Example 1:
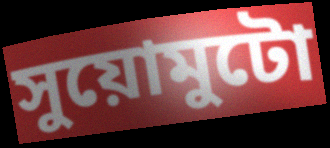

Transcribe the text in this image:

সুয়োমুটো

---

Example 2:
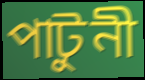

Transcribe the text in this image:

পাটুনী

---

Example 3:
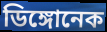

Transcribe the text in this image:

ডিঙ্গোনেক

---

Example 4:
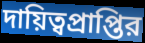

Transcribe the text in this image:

দায়িত্বপ্রাপ্তির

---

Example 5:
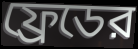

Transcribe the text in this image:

ফ্রেডের